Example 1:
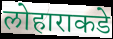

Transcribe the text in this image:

लोहाराकडे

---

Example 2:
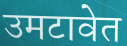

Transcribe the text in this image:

उमटावेत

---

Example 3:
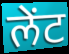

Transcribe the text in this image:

लेंट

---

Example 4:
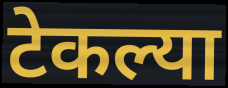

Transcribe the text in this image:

टेकल्या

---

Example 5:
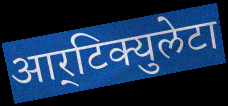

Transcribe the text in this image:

आर्टिक्युलेटा